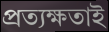
প্রত্যক্ষতাই